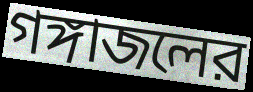
গঙ্গাজলের